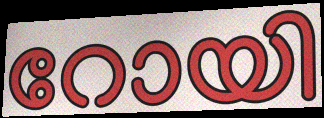
റോയി